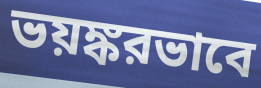
ভয়ঙ্করভাবে